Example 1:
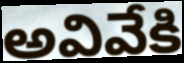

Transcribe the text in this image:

అవివేకి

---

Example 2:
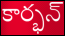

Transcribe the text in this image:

కార్భన్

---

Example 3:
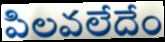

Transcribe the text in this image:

పిలవలేదేం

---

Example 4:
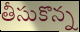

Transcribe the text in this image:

తీసుకొన్న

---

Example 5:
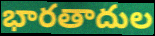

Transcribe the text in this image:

భారతాదుల